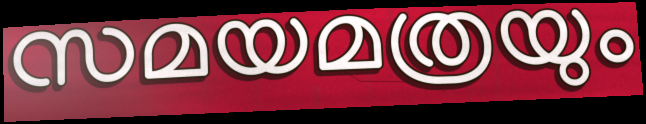
സമയമത്രയും